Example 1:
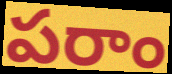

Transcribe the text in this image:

పరాం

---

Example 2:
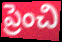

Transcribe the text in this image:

ప్రెంచి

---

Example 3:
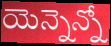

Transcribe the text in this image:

యెన్నెన్నో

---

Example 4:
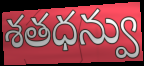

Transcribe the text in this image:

శతధన్వు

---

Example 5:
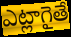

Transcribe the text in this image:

ఎట్లాగైతే